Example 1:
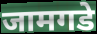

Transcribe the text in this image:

जामगडे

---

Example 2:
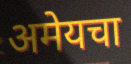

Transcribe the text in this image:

अमेयचा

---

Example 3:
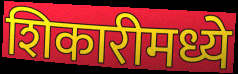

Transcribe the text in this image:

शिकारीमध्ये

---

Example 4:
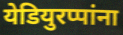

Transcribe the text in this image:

येडियुरप्पांना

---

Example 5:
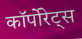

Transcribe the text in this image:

कॉर्पोरेट्स